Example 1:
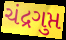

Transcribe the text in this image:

ચંદ્રગુપ્ત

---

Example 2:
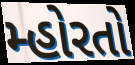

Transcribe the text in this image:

મ્હોરતો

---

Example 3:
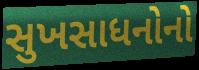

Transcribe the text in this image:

સુખસાધનોનો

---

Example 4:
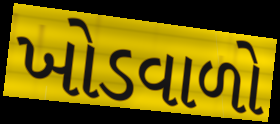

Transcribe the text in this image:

ખોડવાળો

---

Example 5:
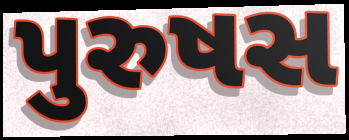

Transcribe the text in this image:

પુરુષસ